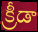
క్రీడా